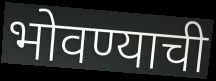
भोवण्याची